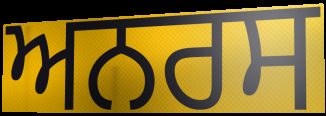
ਅਨਰਸ